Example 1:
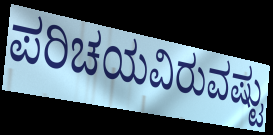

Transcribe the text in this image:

ಪರಿಚಯವಿರುವಷ್ಟು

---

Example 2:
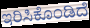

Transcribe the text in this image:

ಇರಿಸಿಕೊಂಡಿದೆ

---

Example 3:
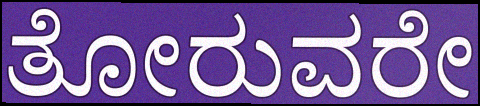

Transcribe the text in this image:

ತೋರುವರೇ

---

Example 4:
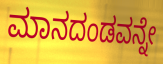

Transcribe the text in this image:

ಮಾನದಂಡವನ್ನೇ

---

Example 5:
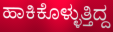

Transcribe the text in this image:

ಹಾಕಿಕೊಳ್ಳುತ್ತಿದ್ದ